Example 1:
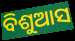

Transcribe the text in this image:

ବିଶୁଆସ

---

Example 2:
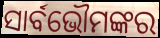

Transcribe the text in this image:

ସାର୍ବଭୌମଙ୍କର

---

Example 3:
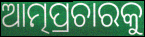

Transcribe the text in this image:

ଆତ୍ମପ୍ରଚାରକୁ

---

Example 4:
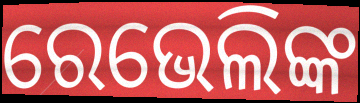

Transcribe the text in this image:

ରେଭେଲିଙ୍କ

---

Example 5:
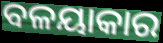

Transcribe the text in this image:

ବଳୟାକାର